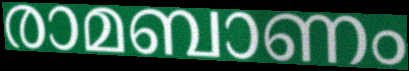
രാമബാണം